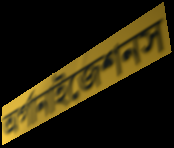
অর্গানাইজেশনস